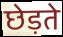
छेड़ते